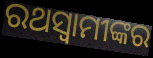
ରଥସ୍ୱାମୀଙ୍କର